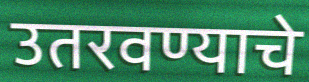
उतरवण्याचे